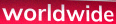
worldwide